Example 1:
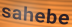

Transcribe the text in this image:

sahebe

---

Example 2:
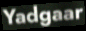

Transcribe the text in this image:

Yadgaar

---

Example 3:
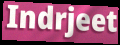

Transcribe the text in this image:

Indrjeet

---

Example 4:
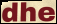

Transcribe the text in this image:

dhe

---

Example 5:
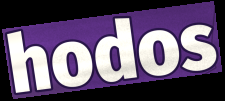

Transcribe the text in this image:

hodos